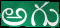
అగు